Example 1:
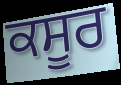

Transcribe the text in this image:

ਕਸੂਰ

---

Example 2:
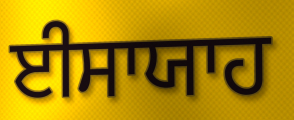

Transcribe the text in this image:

ਈਸਾਯਾਹ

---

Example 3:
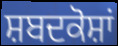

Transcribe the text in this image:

ਸ਼ਬਦਕੋਸ਼ਾਂ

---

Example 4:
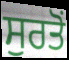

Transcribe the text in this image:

ਸੁਰਤੋਂ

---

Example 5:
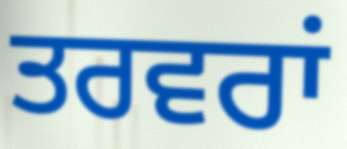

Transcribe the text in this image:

ਤਰਵਰਾਂ